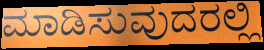
ಮಾಡಿಸುವುದರಲ್ಲಿ